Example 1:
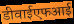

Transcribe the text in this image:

डीवाईएफआई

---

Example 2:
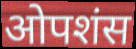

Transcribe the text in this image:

ओपशंस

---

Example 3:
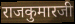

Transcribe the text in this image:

राजकुमारजी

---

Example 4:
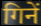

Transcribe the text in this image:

गिनें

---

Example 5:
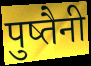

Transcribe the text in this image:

पुष्तैनी